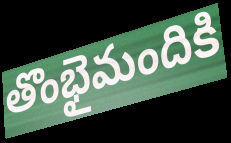
తొంభైమందికి